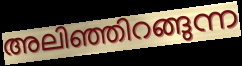
അലിഞ്ഞിറങ്ങുന്ന